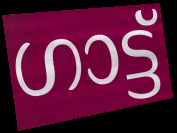
ഗാട്ട്